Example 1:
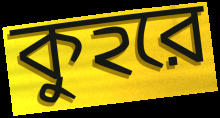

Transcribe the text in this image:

কুহরে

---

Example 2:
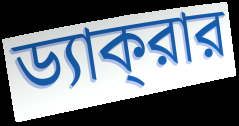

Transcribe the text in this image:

ড্যাক্‌রার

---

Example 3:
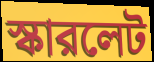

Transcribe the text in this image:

স্কারলেট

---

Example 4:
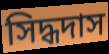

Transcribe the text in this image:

সিদ্ধদাস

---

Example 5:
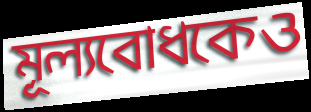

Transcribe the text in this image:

মূল্যবোধকেও